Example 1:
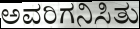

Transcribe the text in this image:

ಅವರಿಗನಿಸಿತು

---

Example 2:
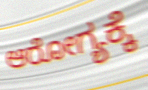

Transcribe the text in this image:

ಆರೋಗ್ಯಕ್ಕೆ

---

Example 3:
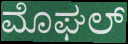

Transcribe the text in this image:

ಮೊಘಲ್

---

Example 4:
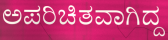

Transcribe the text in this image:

ಅಪರಿಚಿತವಾಗಿದ್ದ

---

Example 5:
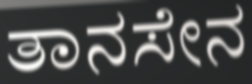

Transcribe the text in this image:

ತಾನಸೇನ